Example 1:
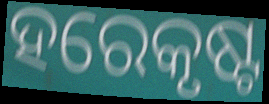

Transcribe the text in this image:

ହରେକୃଷ୍ଟ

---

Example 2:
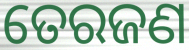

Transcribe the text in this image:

ତେରଜଣ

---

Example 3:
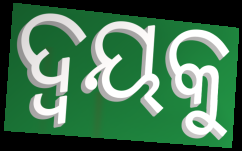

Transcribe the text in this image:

ଦ୍ଵୟକୁ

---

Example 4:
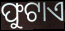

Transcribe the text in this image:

ଫୁଟାଏ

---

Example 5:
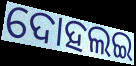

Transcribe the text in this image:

ଦୋହଲଇ